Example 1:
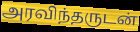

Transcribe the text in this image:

அரவிந்தருடன்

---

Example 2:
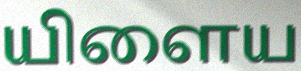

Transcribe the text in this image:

யிளைய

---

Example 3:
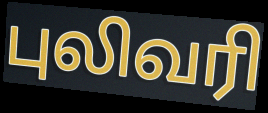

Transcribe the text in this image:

புலிவரி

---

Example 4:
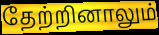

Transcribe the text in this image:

தேற்றினாலும்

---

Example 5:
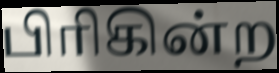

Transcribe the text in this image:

பிரிகின்ற